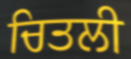
ਚਿਤਲੀ